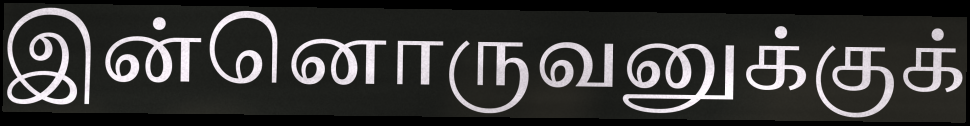
இன்னொருவனுக்குக்